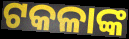
ଟକଳାଙ୍କ